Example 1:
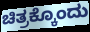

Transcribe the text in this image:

ಚಿತ್ರಕ್ಕೊಂದು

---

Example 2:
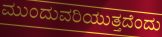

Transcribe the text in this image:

ಮುಂದುವರಿಯುತ್ತದೆಂದು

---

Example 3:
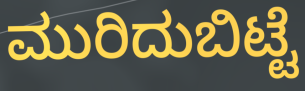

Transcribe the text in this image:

ಮುರಿದುಬಿಟ್ಟೆ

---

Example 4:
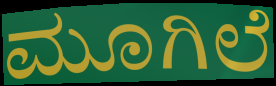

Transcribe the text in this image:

ಮೂಗಿಲೆ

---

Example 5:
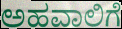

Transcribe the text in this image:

ಅಹವಾಲಿಗೆ